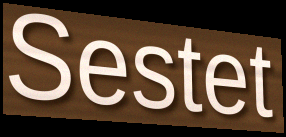
Sestet